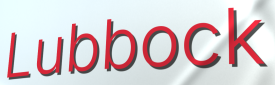
Lubbock